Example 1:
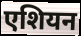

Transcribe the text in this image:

एशियन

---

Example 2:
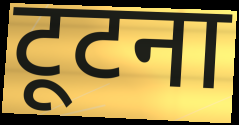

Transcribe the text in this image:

टूटना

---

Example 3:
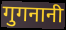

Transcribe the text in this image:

गुगनानी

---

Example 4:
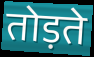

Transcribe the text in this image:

तोड़ते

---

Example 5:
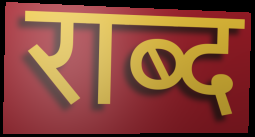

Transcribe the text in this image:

राब्द